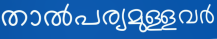
താൽപര്യമുള്ളവർ